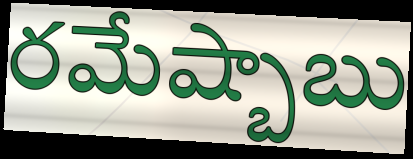
రమేష్బాబు